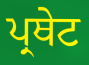
ਪ੍ਰਥੇਟ